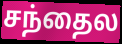
சந்தைல